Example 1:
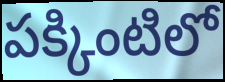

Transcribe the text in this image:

పక్కింటిలో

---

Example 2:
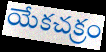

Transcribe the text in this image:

యేకచక్రం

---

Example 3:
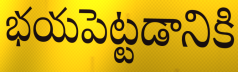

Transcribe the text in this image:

భయపెట్టడానికి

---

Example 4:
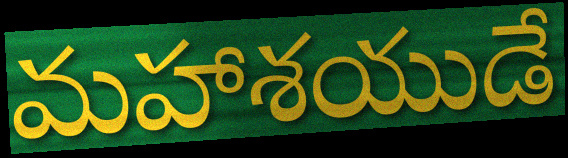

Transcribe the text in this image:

మహాశయుడే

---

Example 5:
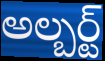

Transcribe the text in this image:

అల్బర్ట్